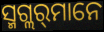
ସ୍ମଗ୍ଲର୍‌ମାନେ